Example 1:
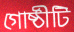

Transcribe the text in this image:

গোষ্ঠীটি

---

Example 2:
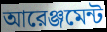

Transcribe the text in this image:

আরেঞ্জমেন্ট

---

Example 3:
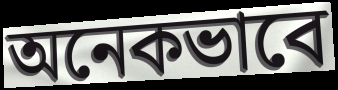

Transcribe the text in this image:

অনেকভাবে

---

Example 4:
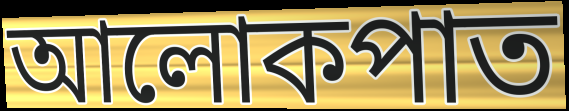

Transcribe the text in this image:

আলোকপাত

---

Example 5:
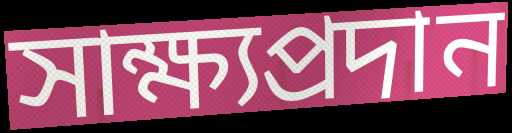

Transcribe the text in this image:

সাক্ষ্যপ্রদান